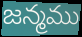
జన్మము